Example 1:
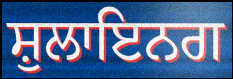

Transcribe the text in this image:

ਸ਼ੁਲਾਇਨਗ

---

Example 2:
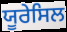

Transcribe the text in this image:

ਯੂਰੇਸਿਲ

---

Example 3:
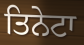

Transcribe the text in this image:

ਤਿਨੇਟਾ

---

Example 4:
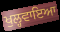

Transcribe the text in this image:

ਖੁਲ੍ਹਵਾਇਆ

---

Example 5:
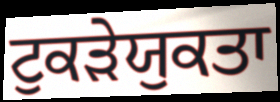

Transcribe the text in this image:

ਟੁਕੜੇਯੁਕਤਾ